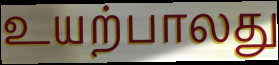
உயற்பாலது